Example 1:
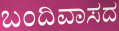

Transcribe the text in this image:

ಬಂದಿವಾಸದ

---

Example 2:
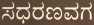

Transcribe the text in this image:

ಸಧರಣವಗ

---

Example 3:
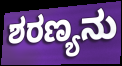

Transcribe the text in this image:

ಶರಣ್ಯನು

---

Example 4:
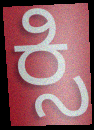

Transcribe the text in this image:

ಕ್ಸಿ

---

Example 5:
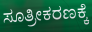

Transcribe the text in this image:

ಸೂತ್ರೀಕರಣಕ್ಕೆ